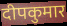
दीपकुमार